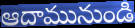
ఆదామునుండి